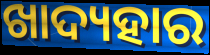
ଖାଦ୍ୟହାର